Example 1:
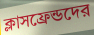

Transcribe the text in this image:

ক্লাসফ্রেন্ডদের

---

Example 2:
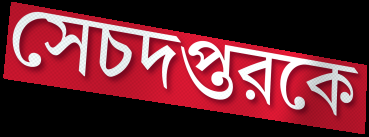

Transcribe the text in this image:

সেচদপ্তরকে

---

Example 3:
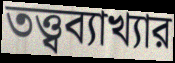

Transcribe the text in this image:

তত্ত্বব্যাখ্যার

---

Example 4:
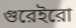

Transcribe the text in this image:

গুরেইরো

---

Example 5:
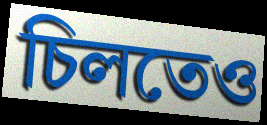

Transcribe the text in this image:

চিলতেও